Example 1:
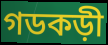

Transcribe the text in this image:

গডকড়ী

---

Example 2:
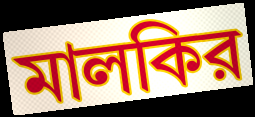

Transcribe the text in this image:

মালকির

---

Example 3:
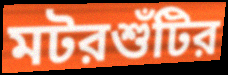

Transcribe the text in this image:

মটরশুঁটির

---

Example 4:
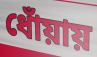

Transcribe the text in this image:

ধোঁয়ায়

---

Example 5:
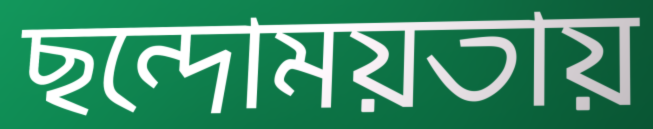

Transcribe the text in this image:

ছন্দোময়তায়